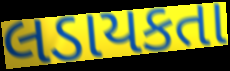
લડાયકતા